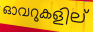
ഓവറുകളില്